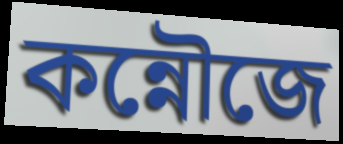
কন্নৌজে